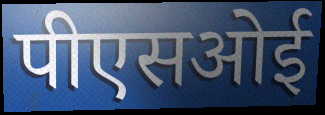
पीएसओई